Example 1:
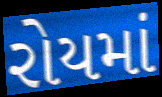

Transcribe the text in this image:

રોયમાં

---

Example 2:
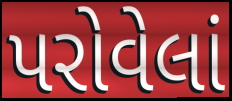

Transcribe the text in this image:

પરોવેલાં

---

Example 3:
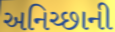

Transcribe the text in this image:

અનિચ્છાની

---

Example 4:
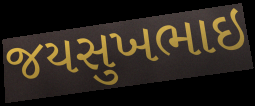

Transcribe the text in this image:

જયસુખભાઇ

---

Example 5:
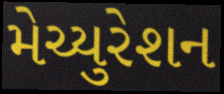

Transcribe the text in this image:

મેચ્યુરેશન